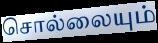
சொல்லையும்